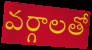
వర్గాలతో